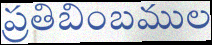
ప్రతిబింబముల